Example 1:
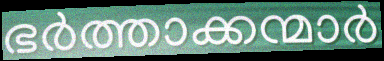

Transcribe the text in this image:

ഭർത്താക്കന്മാർ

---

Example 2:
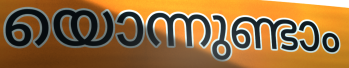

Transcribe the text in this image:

യൊന്നുണ്ടാം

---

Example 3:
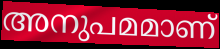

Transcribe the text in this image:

അനുപമമാണ്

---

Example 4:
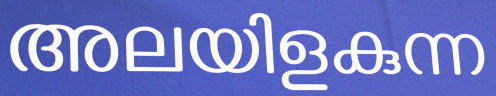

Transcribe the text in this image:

അലയിളകുന്ന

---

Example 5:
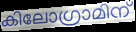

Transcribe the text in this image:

കിലോഗ്രാമിന്